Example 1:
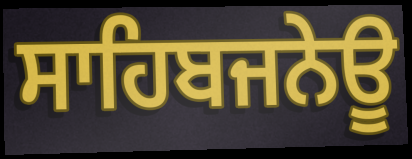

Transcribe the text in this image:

ਸਾਹਿਬਜਨੇਊ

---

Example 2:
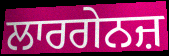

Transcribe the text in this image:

ਲਾਰਗੇਨਜ਼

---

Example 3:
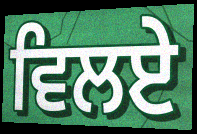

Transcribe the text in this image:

ਵਿਲਏ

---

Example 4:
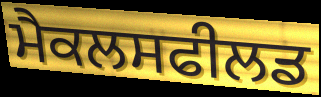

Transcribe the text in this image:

ਮੈਕਲਸਫੀਲਡ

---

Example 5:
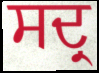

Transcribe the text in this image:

ਸਦ੍ਰ